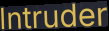
Intruder